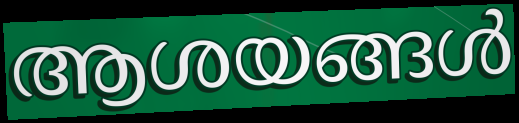
ആശയങ്ങൾ